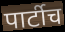
पार्टीच